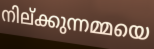
നില്ക്കുന്നമ്മയെ